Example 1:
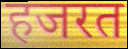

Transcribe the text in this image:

हजरत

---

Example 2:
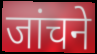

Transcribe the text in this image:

जांचने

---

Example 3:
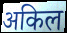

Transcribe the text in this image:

अकिल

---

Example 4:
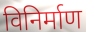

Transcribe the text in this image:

विनिर्माण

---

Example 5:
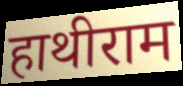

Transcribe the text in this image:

हाथीराम